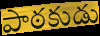
పాఠకుడు